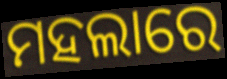
ମହଲାରେ